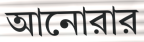
আনোরার